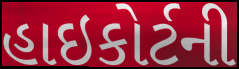
હાઇકોર્ટની